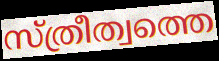
സ്ത്രീത്വത്തെ